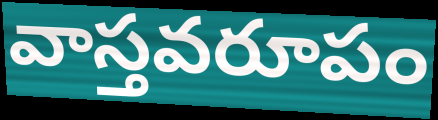
వాస్తవరూపం